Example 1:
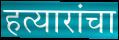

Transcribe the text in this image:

हत्यारांचा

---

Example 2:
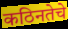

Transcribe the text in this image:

कठिनतेचे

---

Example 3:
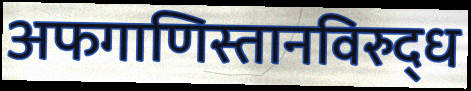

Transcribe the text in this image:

अफगाणिस्तानविरुद्ध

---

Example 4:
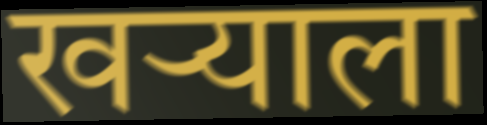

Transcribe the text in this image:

खर्‍याला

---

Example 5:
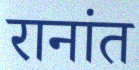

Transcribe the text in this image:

रानांत